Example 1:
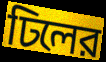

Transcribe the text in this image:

ঢিলের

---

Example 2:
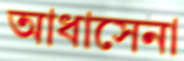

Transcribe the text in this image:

আধাসেনা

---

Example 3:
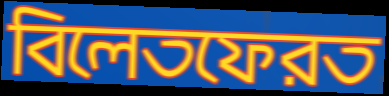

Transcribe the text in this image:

বিলেতফেরত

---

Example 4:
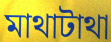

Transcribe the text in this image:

মাথাটাথা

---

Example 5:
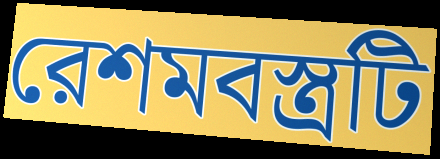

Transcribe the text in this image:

রেশমবস্ত্রটি